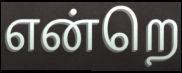
என்றெ